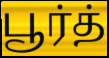
பூர்த்